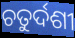
ଚତୁର୍ଦଶୀ